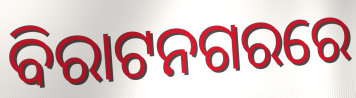
ବିରାଟନଗରରେ